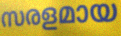
സരളമായ